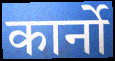
कार्नो